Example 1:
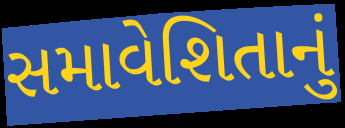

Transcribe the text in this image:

સમાવેશિતાનું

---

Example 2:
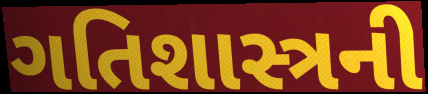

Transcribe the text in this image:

ગતિશાસ્ત્રની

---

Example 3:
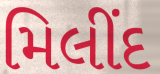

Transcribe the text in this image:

મિલીંદ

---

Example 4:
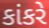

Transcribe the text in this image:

કાંકરે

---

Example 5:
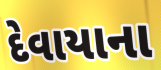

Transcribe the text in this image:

દેવાયાના